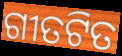
ଗୀତଟିତ